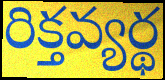
రిక్తవ్యర్థ